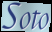
Soto